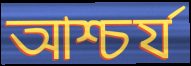
আশ্চর্য